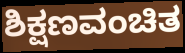
ಶಿಕ್ಷಣವಂಚಿತ